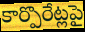
కార్పొరేట్లపై